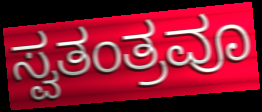
ಸ್ವತಂತ್ರವೂ